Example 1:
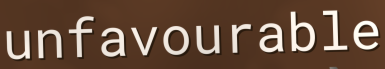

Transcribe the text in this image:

unfavourable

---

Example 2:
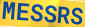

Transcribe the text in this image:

MESSRS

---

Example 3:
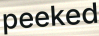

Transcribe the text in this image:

peeked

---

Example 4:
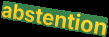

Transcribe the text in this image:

abstention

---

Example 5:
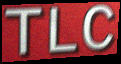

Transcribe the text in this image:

TLC